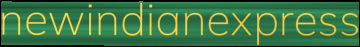
newindianexpress